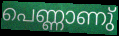
പെണ്ണാണു്